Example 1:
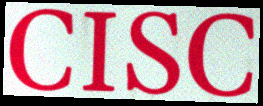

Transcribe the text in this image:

CISC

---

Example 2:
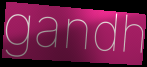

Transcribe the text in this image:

gandh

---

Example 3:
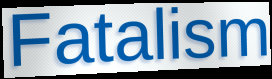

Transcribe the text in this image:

Fatalism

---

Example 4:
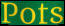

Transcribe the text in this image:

Pots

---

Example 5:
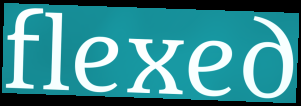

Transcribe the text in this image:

flexed